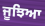
ਜੂਝਿਆ